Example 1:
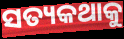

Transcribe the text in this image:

ସତ୍ୟକଥାକୁ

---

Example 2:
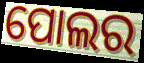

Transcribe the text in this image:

ପୋଲର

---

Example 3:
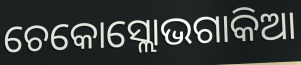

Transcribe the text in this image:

ଚେକୋସ୍ଲୋଭଗାକିଆ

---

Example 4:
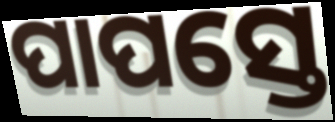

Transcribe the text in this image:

ପାପସ୍ତେ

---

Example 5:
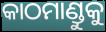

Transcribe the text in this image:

କାଠମାଣ୍ଡୁକୁ